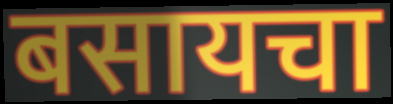
बसायचा